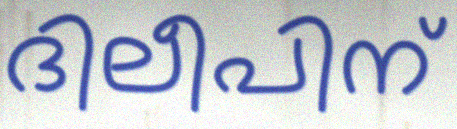
ദിലീപിന്